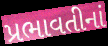
પ્રભાવતીનાં